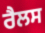
ਰੈਲਸ